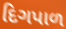
દિગપાળ